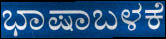
ಭಾಷಾಬಳಕೆ